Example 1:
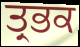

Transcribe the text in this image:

ਤ੍ਰਭਕ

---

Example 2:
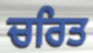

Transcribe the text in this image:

ਚਰਿਤ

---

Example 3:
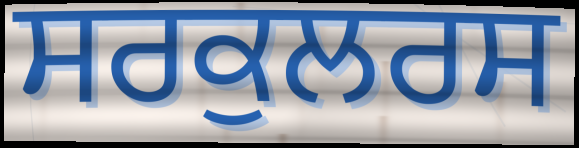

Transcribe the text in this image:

ਸਰਕੁਲਰਸ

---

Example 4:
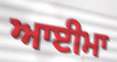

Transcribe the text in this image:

ਆਈਮਾ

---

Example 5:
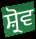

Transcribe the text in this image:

ਸ਼੍ਰੋਵ